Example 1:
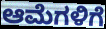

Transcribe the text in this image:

ಆಮೆಗಳಿಗೆ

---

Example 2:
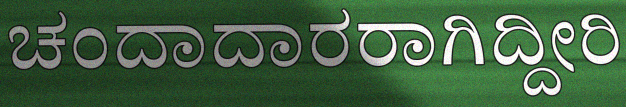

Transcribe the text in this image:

ಚಂದಾದಾರರಾಗಿದ್ದೀರಿ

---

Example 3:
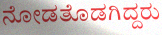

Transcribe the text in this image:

ನೋಡತೊಡಗಿದ್ದರು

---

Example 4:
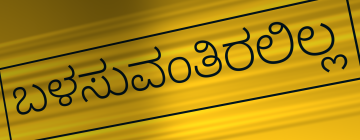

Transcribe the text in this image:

ಬಳಸುವಂತಿರಲಿಲ್ಲ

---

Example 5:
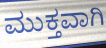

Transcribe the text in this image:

ಮುಕ್ತವಾಗಿ